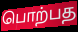
பொற்பத